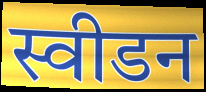
स्वीडन